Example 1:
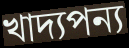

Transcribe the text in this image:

খাদ্যপন্য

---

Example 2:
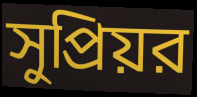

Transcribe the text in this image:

সুপ্রিয়র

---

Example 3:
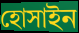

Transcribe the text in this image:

হোসাইন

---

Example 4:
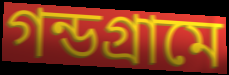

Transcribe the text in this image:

গন্ডগ্রামে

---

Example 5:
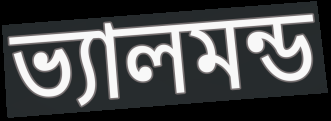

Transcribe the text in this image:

ভ্যালমন্ড